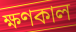
ক্ষণকাল